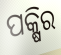
ପକ୍ଷିର